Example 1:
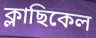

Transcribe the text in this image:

ক্লাছিকেল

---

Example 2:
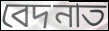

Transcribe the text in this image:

বেদনাত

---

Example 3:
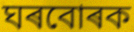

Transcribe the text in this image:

ঘৰবোৰক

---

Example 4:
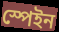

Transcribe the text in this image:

স্পেইন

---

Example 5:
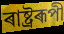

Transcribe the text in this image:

ৰাষ্ট্ৰৰূপী